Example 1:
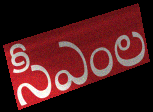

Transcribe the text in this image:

సీఎంల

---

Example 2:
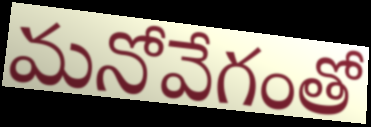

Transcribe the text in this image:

మనోవేగంతో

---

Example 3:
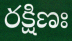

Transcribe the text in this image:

రక్షిణః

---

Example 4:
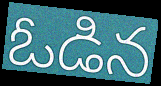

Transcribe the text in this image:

ఓడిన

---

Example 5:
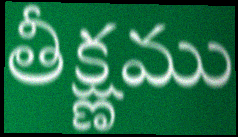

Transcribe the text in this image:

తీక్ష్ణము